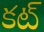
కట్